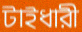
টাইধারী